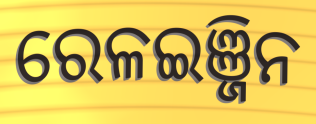
ରେଳଇଞ୍ଜିନ